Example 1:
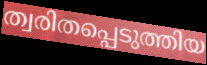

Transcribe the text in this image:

ത്വരിതപ്പെടുത്തിയ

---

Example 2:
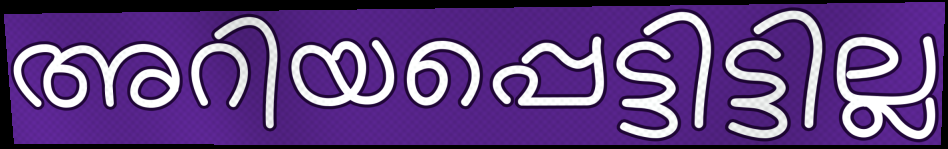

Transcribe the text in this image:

അറിയപ്പെട്ടിട്ടില്ല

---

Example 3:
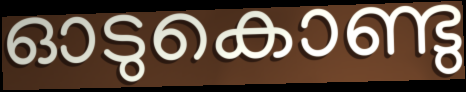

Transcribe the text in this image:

ഓടുകൊണ്ടു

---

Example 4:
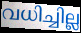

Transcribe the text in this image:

വധിച്ചില്ല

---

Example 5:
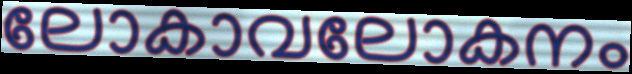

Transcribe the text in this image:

ലോകാവലോകനം